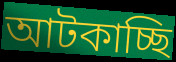
আটকাচ্ছি